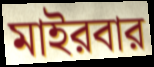
মাইরবার